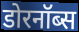
डोरनॉब्स